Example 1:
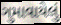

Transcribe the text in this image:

ગુમાવાયેલું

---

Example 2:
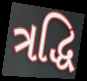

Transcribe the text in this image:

ત્રદ્ધિ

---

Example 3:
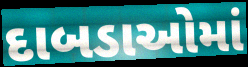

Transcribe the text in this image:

દાબડાઓમાં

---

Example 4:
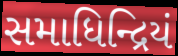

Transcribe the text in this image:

સમાધિન્દ્રિયં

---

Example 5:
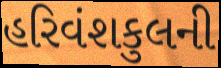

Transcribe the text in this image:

હરિવંશકુલની